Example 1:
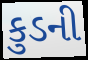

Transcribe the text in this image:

કુડની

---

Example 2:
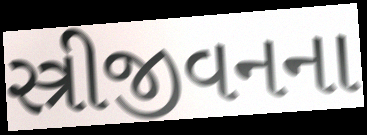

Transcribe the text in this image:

સ્ત્રીજીવનના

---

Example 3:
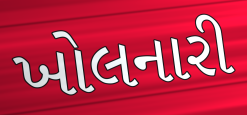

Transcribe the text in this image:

ખોલનારી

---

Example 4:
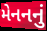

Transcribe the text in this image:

મેનનનું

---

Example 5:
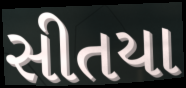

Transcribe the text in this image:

સીતયા